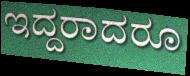
ಇದ್ದರಾದರೂ